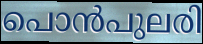
പൊൻപുലരി